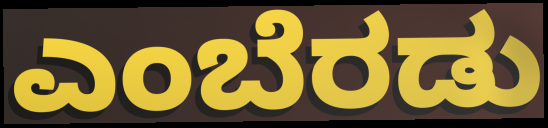
ಎಂಬೆರಡು